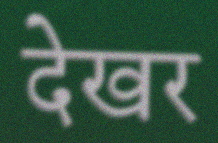
देखर